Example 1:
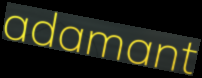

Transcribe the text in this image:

adamant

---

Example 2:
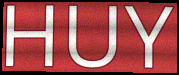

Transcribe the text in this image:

HUY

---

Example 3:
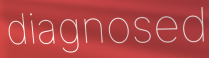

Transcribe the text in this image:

diagnosed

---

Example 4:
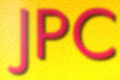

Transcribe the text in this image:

JPC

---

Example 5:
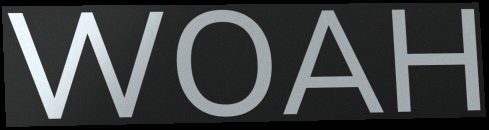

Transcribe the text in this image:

WOAH